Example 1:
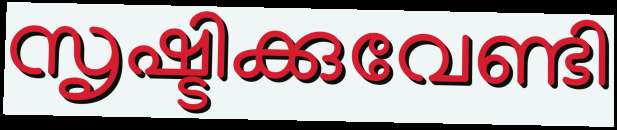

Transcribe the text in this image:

സൃഷ്ടിക്കുവേണ്ടി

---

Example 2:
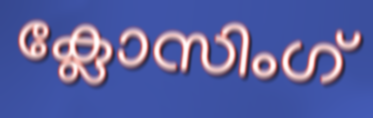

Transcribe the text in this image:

ക്ലോസിംഗ്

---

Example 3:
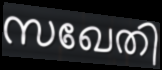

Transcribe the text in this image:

സഖേതി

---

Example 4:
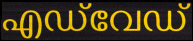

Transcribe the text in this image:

എഡ്‌വേഡ്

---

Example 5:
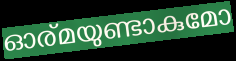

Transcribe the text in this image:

ഓര്മയുണ്ടാകുമോ